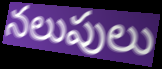
నలుపులు